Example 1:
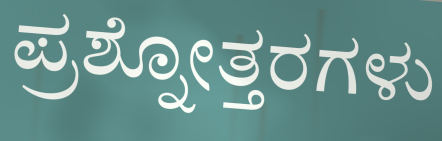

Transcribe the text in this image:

ಪ್ರಶ್ನೋತ್ತರಗಳು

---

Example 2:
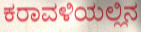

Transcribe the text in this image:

ಕರಾವಳಿಯಲ್ಲಿನ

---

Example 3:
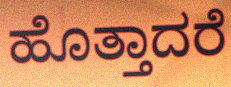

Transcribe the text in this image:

ಹೊತ್ತಾದರೆ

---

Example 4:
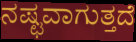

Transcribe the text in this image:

ನಷ್ಟವಾಗುತ್ತದೆ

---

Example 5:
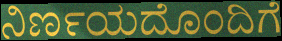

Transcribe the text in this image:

ನಿರ್ಣಯದೊಂದಿಗೆ